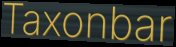
Taxonbar